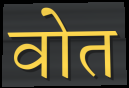
वोत